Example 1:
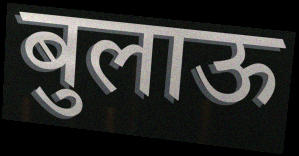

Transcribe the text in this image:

बुलाऊ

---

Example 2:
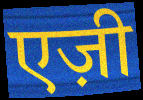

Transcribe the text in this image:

एज़ी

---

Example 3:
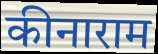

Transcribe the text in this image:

कीनाराम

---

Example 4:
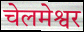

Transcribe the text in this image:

चेलमेश्वर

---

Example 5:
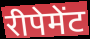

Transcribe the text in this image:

रीपेमेंट